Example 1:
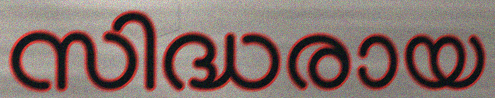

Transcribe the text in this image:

സിദ്ധരായ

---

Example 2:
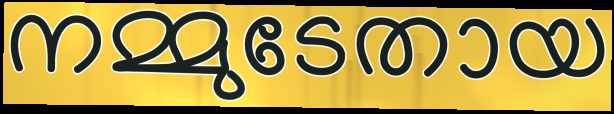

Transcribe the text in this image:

നമ്മുടേതായ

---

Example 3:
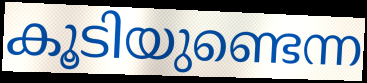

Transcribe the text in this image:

കൂടിയുണ്ടെന്ന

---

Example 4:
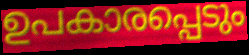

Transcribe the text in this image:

ഉപകാരപ്പെടും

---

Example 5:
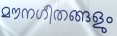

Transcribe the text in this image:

മൗനഗീതങ്ങളും